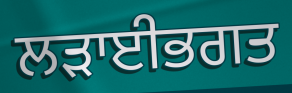
ਲੜਾਈਭਗਤ